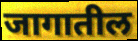
जागातील